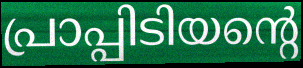
പ്രാപ്പിടിയന്റെ